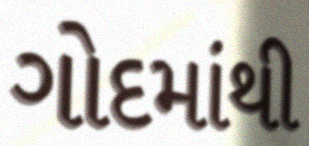
ગોદમાંથી